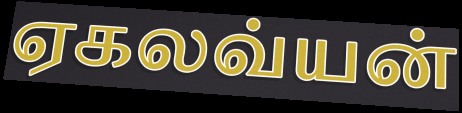
ஏகலவ்யன்